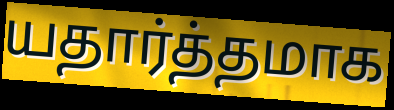
யதார்த்தமாக